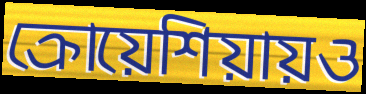
ক্রোয়েশিয়ায়ও